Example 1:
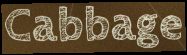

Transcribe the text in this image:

Cabbage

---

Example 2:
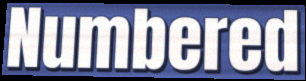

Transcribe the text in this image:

Numbered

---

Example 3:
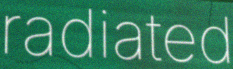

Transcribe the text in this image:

radiated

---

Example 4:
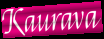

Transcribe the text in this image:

Kaurava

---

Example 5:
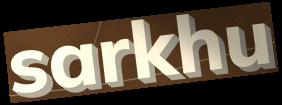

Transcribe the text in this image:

sarkhu